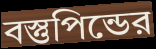
বস্তুপিন্ডের